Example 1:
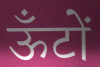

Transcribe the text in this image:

ऊँटों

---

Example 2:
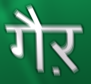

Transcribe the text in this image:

गैऱ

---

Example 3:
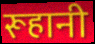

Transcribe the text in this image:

रूहानी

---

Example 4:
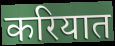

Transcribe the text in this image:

करियात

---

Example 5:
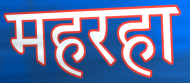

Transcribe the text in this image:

महरहा